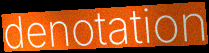
denotation